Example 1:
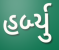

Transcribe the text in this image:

હર્બ્યુ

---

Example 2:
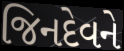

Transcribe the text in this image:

જિનદેવને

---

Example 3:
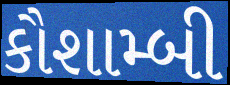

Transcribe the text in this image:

કૌશામ્બી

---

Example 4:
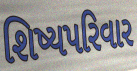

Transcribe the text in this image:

શિષ્યપરિવાર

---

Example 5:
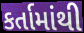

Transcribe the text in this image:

કર્તામાંથી